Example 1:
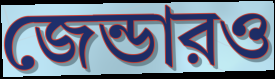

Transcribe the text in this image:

জেন্ডারও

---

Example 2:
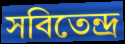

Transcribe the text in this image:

সবিতেন্দ্র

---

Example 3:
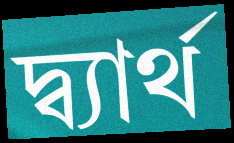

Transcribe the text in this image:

দ্ব্যার্থ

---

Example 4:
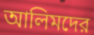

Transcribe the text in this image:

আলিমদের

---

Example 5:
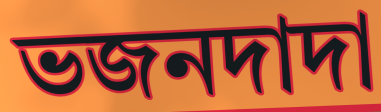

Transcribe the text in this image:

ভজনদাদা